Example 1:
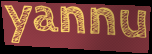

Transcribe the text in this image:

yannu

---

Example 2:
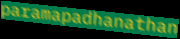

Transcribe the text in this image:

paramapadhanathan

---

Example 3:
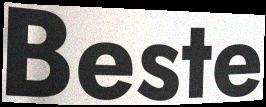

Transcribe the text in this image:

Beste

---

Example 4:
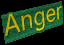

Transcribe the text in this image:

Anger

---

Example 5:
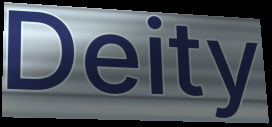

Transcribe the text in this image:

Deity